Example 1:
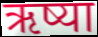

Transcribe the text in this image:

ऋष्या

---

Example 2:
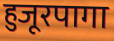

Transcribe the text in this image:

हुजूरपागा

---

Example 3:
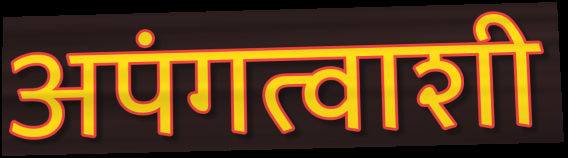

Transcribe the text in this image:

अपंगत्वाशी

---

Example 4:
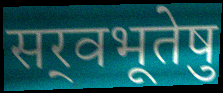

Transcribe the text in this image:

सर्वभूतेषु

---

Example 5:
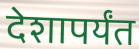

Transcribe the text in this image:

देशापर्यंत